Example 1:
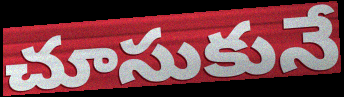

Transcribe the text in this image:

చూసుకునే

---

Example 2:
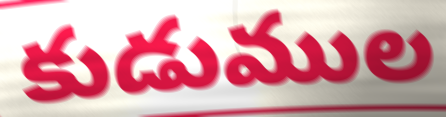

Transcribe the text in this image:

కుడుముల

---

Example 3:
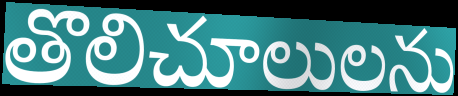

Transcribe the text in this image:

తొలిచూలులను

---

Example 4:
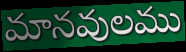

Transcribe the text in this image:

మానవులము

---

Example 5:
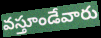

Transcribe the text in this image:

వస్తూండేవారు